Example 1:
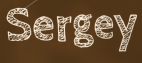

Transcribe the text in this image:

Sergey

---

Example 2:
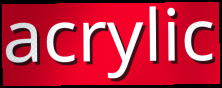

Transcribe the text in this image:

acrylic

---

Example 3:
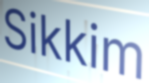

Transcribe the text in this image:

Sikkim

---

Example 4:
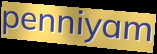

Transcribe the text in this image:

penniyam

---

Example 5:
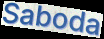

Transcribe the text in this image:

Saboda